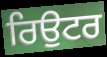
ਰਿਉਟਰ